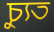
চ্যুত